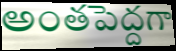
అంతపెద్దగా